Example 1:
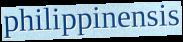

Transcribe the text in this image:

philippinensis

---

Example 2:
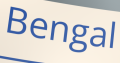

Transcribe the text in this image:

Bengal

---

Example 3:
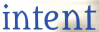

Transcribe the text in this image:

intent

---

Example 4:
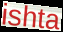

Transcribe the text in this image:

ishta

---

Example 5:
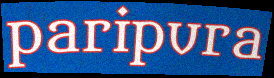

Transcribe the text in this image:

paripura